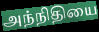
அந்நிதியை